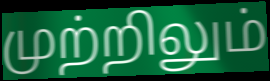
முற்றிலும்